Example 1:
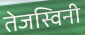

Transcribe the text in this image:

तेजस्विनी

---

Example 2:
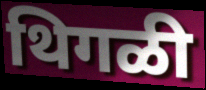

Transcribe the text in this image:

थिगळी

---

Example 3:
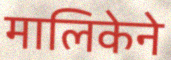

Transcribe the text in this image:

मालिकेने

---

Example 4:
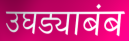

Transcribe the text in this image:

उघड्याबंब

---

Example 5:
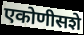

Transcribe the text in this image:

एकोणीसशे